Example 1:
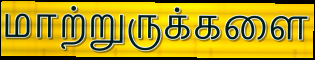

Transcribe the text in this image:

மாற்றுருக்களை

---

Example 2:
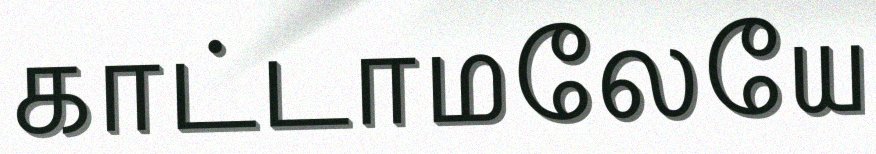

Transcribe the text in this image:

காட்டாமலேயே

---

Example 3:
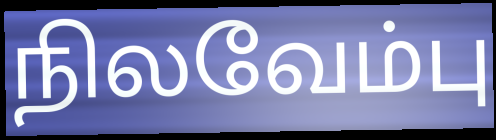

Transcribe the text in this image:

நிலவேம்பு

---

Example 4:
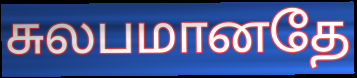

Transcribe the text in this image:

சுலபமானதே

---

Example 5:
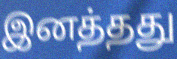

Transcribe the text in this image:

இனத்தது